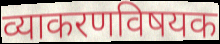
व्याकरणविषयक